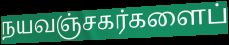
நயவஞ்சகர்களைப்